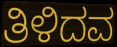
ತಿಳಿದವ